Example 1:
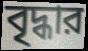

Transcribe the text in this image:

বৃদ্ধার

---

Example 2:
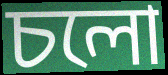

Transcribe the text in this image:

চলো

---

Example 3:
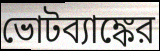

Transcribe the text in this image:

ভোটব্যাঙ্কের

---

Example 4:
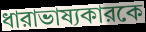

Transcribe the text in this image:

ধারাভাষ্যকারকে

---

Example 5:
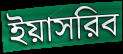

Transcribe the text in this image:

ইয়াসরিব